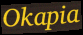
Okapia